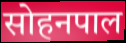
सोहनपाल